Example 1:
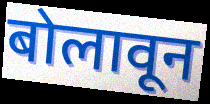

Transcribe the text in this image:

बोलावून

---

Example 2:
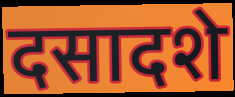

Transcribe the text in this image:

दसादशे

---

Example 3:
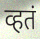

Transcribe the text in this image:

व्हतं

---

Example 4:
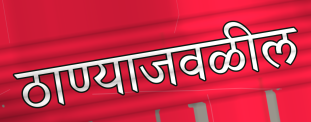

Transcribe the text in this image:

ठाण्याजवळील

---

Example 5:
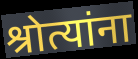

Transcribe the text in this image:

श्रोत्यांना